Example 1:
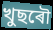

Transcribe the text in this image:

খুছৰৌ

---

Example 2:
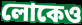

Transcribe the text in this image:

লোকেও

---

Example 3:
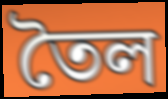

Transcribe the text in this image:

তৈল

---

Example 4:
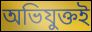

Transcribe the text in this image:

অভিযুক্তই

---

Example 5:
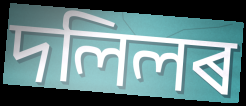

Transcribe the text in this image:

দলিলৰ